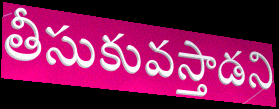
తీసుకువస్తాడని